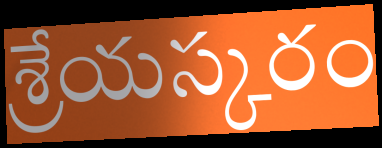
శ్రేయస్కరం